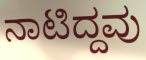
ನಾಟಿದ್ದವು